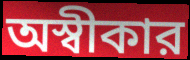
অস্বীকার